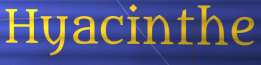
Hyacinthe